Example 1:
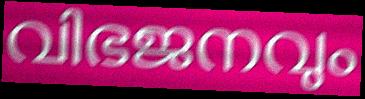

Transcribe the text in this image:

വിഭജനവും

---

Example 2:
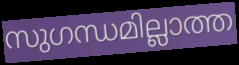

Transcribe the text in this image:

സുഗന്ധമില്ലാത്ത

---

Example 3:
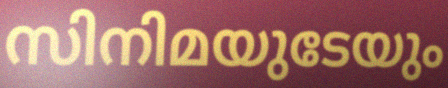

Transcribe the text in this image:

സിനിമയുടേയും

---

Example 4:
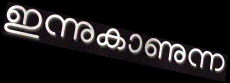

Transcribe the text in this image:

ഇന്നുകാണുന്ന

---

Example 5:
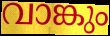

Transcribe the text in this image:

വാങ്കും